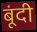
बूंदी